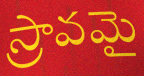
స్రావమై